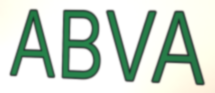
ABVA